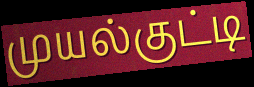
முயல்குட்டி